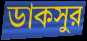
ডাকসুর